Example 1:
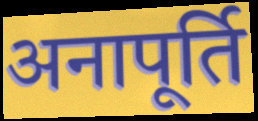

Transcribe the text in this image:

अनापूर्ति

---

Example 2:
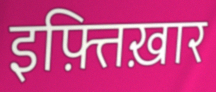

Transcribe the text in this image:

इफ़्तिख़ार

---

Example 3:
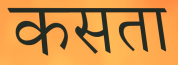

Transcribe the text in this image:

कसता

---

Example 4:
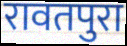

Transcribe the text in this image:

रावतपुरा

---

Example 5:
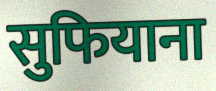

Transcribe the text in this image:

सुफियाना